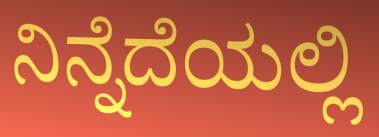
ನಿನ್ನೆದೆಯಲ್ಲಿ